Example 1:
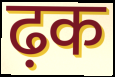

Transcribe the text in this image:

ढ़क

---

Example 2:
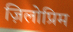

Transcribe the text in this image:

ज़िलोप्रिम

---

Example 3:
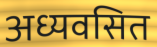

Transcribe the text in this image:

अध्यवसित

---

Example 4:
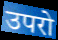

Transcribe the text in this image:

उपरो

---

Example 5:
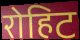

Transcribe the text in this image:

रोहिट